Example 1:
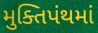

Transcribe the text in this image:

મુક્તિપંથમાં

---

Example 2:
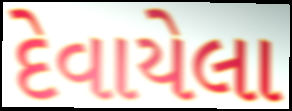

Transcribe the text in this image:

દેવાયેલા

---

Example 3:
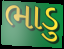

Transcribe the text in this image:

ભાડુ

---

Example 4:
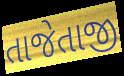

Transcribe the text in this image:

તાજેતાજી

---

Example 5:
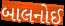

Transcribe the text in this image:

બાલનોઈ